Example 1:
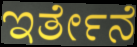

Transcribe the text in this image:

ಇರ್ತೇನೆ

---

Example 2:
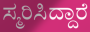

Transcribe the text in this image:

ಸ್ಮರಿಸಿದ್ದಾರೆ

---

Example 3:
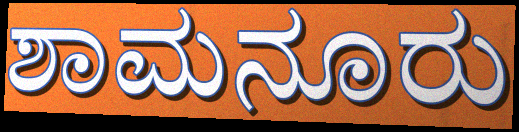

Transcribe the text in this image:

ಶಾಮನೂರು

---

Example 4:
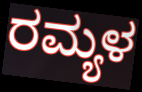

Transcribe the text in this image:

ರಮ್ಯಳ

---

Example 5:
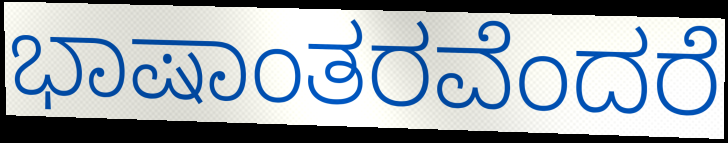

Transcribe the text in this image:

ಭಾಷಾಂತರವೆಂದರೆ